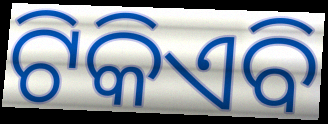
ଟିକିଏବି